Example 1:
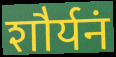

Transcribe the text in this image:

शौर्यनं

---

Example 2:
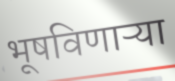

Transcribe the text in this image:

भूषविणाऱ्या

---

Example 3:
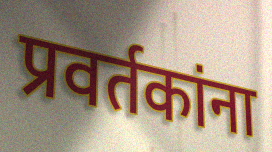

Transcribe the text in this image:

प्रवर्तकांना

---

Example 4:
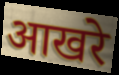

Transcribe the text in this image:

आखरे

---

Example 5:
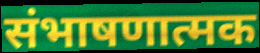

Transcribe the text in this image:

संभाषणात्मक